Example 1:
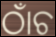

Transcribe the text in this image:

ଠାଁଚ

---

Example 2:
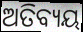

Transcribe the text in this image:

ଅତିବ୍ୟୟ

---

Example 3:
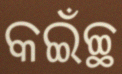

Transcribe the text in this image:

କଇଁଚ୍ଛ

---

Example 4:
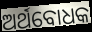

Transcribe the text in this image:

ଅର୍ଥବୋଧକ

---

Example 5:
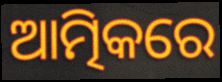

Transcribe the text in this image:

ଆତ୍ମିକରେ